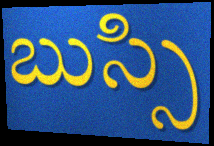
బుస్సి